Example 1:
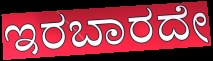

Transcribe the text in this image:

ಇರಬಾರದೇ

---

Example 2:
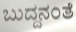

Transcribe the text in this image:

ಬುದ್ದನಂತೆ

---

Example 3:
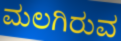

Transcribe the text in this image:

ಮಲಗಿರುವ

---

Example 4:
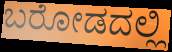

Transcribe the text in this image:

ಬರೋಡದಲ್ಲಿ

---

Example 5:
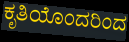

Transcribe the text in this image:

ಕೃತಿಯೊಂದರಿಂದ